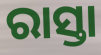
ରାସ୍ତା